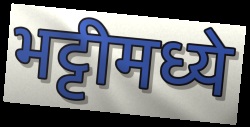
भट्टीमध्ये